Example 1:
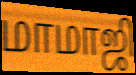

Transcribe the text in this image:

மாமாஜி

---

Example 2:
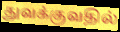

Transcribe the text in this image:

துவக்குவதில்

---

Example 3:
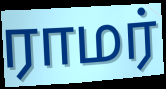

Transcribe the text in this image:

ராமர்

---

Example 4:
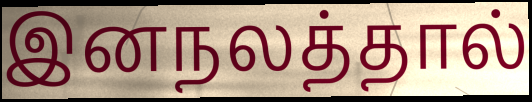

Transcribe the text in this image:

இனநலத்தால்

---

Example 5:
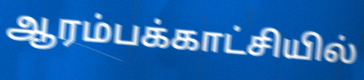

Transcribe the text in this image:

ஆரம்பக்காட்சியில்